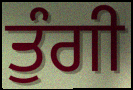
ਤੁੰਗੀ